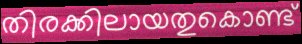
തിരക്കിലായതുകൊണ്ട്